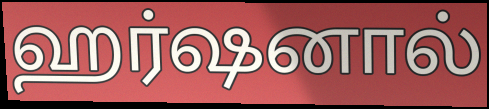
ஹர்ஷனால்